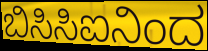
ಬಿಸಿಸಿಐನಿಂದ